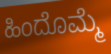
ಹಿಂದೊಮ್ಮೆ